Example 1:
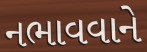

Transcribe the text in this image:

નભાવવાને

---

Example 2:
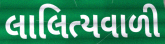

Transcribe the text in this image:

લાલિત્યવાળી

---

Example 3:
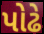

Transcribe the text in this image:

પોઢે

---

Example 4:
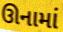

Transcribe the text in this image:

ઊનામાં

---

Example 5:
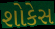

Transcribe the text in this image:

શોકેસ